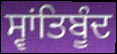
ਸ੍ਵਾਂਤਿਬੂੰਦ